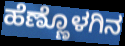
ಹೆಣ್ಣೊಳಗಿನ